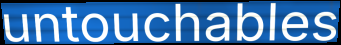
untouchables